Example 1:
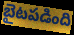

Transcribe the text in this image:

బైటపడింది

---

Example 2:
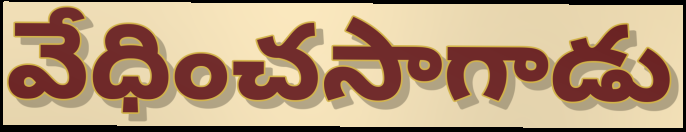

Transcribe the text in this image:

వేధించసాగాడు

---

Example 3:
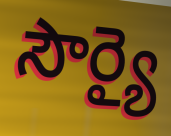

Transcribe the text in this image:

సౌర్యై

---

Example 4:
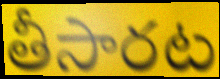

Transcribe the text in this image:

తీసారట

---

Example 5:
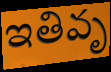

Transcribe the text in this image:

ఇతివృ